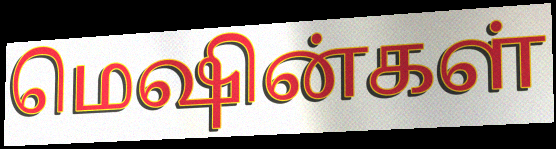
மெஷின்கள்